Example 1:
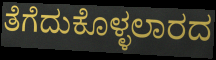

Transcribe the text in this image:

ತೆಗೆದುಕೊಳ್ಳಲಾರದ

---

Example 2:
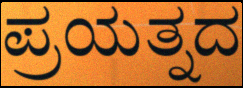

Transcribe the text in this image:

ಪ್ರಯತ್ನದ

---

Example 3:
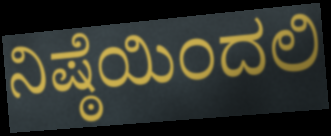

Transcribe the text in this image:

ನಿಷ್ಠೆಯಿಂದಲಿ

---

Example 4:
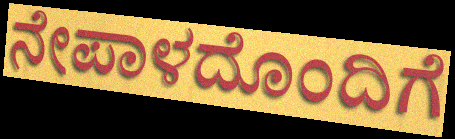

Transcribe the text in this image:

ನೇಪಾಳದೊಂದಿಗೆ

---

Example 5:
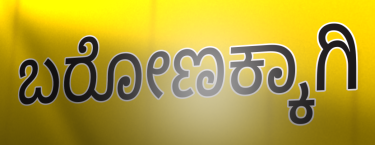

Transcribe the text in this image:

ಬರೋಣಕ್ಕಾಗಿ